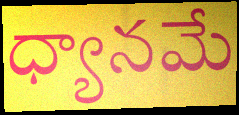
ధ్యానమే